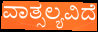
ವಾತ್ಸಲ್ಯವಿದೆ